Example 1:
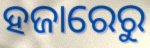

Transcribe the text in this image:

ହଜାରେରୁ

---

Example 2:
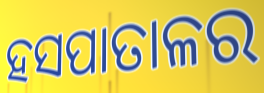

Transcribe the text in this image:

ହସପାତାଳର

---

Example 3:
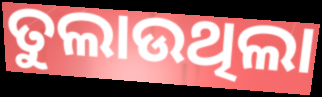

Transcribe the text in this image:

ତୁଲାଉଥିଲା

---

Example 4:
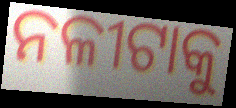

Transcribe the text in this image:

ନଳୀଟାକୁ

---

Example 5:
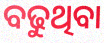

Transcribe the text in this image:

ବଢୁଥିବା